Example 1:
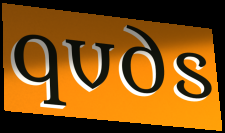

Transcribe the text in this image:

quds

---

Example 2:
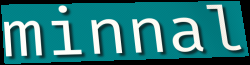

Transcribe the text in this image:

minnal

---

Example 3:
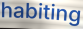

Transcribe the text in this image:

habiting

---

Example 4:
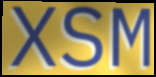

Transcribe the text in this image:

XSM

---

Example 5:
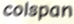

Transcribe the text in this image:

colspan